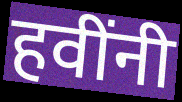
हवींनी